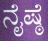
ನೈಷ್ಠೆ